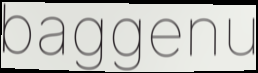
baggenu